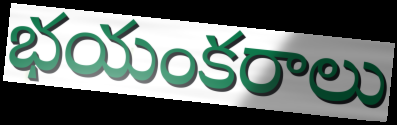
భయంకరాలు